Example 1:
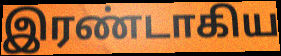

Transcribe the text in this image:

இரண்டாகிய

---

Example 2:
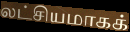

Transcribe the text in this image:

லட்சியமாகக்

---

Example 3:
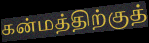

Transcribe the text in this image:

கன்மத்திற்குத்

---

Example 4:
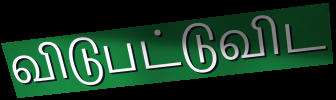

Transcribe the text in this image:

விடுபட்டுவிட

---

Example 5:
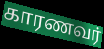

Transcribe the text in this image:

காரணவர்